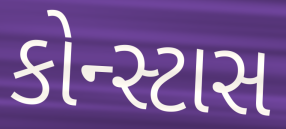
કોન્સ્ટાસ